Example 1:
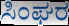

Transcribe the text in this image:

ಸಿಂಘರ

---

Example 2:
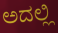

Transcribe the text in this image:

ಅದಲ್ಲಿ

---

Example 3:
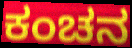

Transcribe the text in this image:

ಕಂಚನ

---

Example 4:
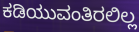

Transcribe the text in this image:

ಕಡಿಯುವಂತಿರಲಿಲ್ಲ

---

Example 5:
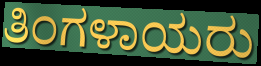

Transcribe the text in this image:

ತಿಂಗಳಾಯರು